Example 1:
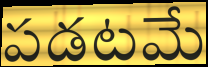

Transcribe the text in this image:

పడటమే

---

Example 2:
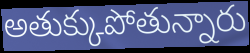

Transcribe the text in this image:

అతుక్కుపోతున్నారు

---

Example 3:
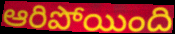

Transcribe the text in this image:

ఆరిపోయింది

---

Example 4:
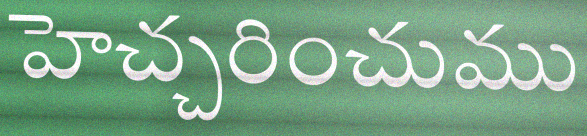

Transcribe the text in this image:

హెచ్చరించుము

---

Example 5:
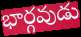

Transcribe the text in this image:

భార్గవుడు